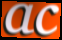
ac